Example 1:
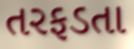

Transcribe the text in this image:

તરફડતા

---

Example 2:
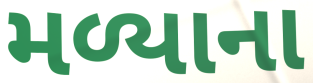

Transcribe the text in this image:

મળ્યાના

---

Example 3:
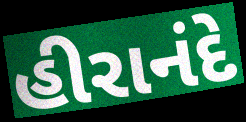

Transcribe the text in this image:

હીરાનંદે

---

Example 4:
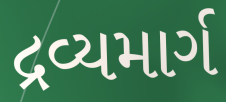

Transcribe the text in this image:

દ્રવ્યમાર્ગ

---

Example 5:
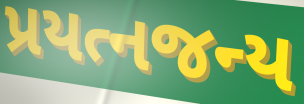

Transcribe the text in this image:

પ્રયત્નજન્ય